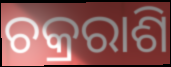
ଚକ୍ରରାଶି